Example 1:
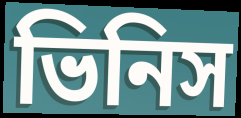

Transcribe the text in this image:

ভিনিস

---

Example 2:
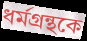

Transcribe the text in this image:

ধর্মগ্রন্থকে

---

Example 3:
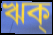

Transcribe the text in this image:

ঋক্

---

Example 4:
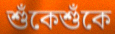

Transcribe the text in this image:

শুঁকেশুঁকে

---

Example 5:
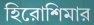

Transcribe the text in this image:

হিরোশিমার